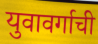
युवावर्गाची